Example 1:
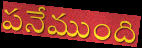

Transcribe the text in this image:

పనేముంది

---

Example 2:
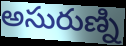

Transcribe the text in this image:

అసురుణ్ని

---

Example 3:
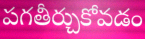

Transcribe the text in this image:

పగతీర్చుకోవడం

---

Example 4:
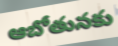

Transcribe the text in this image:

ఆబోతునకు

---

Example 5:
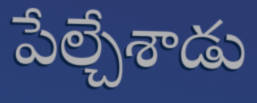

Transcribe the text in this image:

పేల్చేశాడు